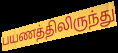
பயணத்திலிருந்து